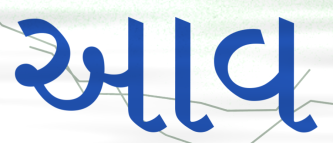
આવ